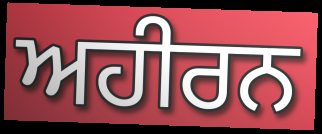
ਅਹੀਰਨ